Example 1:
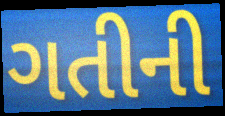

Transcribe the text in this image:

ગતીની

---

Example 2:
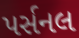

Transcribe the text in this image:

પર્સનલ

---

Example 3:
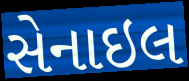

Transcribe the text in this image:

સેનાઇલ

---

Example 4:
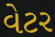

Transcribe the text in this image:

વેટર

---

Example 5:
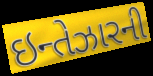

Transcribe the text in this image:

ઇન્તેઝારની